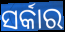
ସର୍କାର